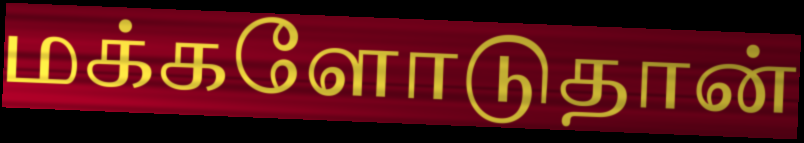
மக்களோடுதான்